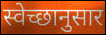
स्वेच्छानुसार